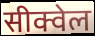
सीक्वेल